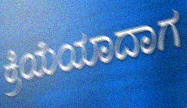
ಕ್ರಿಯೆಯಾದಾಗ